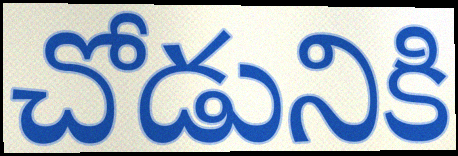
చోడునికి